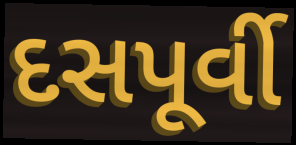
દસપૂર્વી